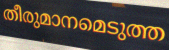
തീരുമാനമെടുത്ത